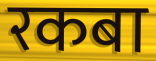
रकबा